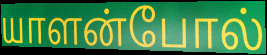
யாளன்போல்